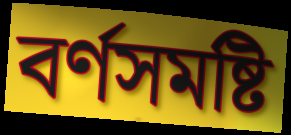
বর্ণসমষ্টি